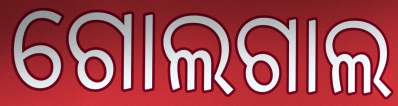
ଗୋଲଗାଲ